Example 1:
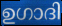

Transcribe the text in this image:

ഉഗാദി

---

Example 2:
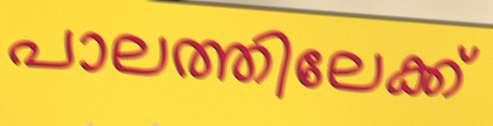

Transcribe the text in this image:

പാലത്തിലേക്ക്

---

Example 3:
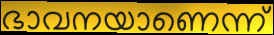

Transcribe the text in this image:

ഭാവനയാണെന്ന്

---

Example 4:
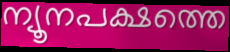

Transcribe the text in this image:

ന്യൂനപക്ഷത്തെ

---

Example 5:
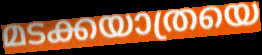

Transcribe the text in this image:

മടക്കയാത്രയെ